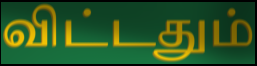
விட்டதும்